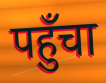
पहुँचा